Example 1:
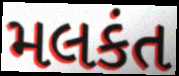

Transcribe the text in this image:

મલકંત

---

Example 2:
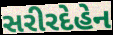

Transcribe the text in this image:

સરીરદેહેન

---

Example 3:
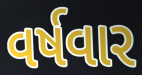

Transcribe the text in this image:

વર્ષવાર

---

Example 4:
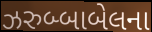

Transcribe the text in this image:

ઝરુબ્બાબેલના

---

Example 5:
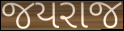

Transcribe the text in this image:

જયરાજ